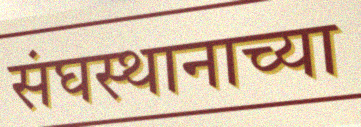
संघस्थानाच्या